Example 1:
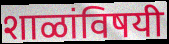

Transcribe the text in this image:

शाळांविषयी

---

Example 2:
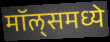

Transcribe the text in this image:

मॉल्समध्ये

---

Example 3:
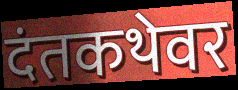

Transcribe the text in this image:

दंतकथेवर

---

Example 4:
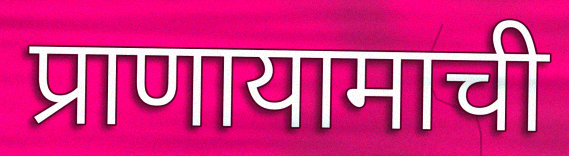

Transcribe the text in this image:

प्राणायामाची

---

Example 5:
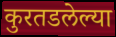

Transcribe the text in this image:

कुरतडलेल्या